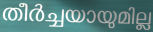
തീർച്ചയായുമില്ല